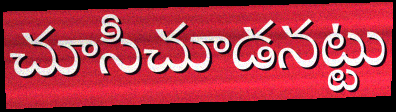
చూసీచూడనట్టు